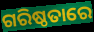
ଗରିଷ୍ଠତାରେ